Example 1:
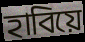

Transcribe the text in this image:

হাবিয়ে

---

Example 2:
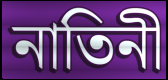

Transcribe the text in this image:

নাতিনী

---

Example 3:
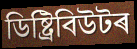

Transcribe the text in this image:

ডিষ্ট্ৰিবিউটৰ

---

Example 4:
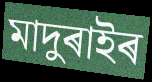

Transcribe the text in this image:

মাদুৰাইৰ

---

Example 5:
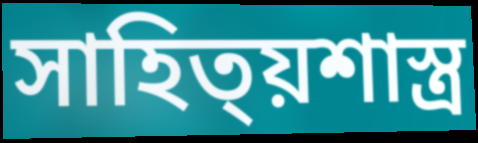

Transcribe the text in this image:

সাহিত্য়শাস্ত্ৰ